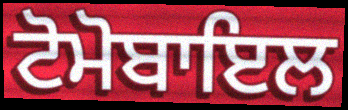
ਟੋਮੋਬਾਇਲ